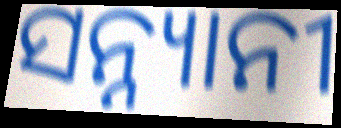
ସନ୍ନ୍ୟାନୀ